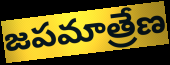
జపమాత్రేణ